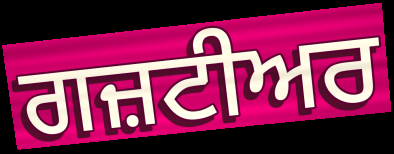
ਗਜ਼ਟੀਅਰ